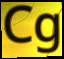
Cg